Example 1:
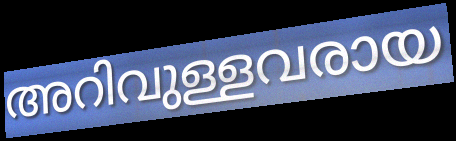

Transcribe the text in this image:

അറിവുള്ളവരായ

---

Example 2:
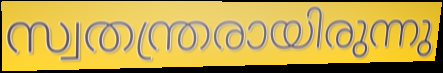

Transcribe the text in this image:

സ്വതന്ത്രരായിരുന്നു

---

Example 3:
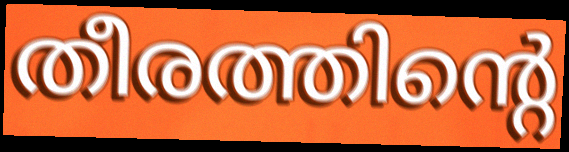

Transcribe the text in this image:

തീരത്തിന്റെ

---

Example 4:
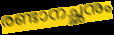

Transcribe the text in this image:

രണ്ടാനച്ഛനും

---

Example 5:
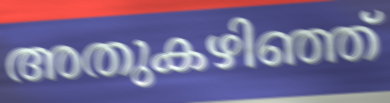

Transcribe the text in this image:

അതുകഴിഞ്ഞ്